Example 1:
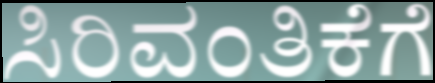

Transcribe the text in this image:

ಸಿರಿವಂತಿಕೆಗೆ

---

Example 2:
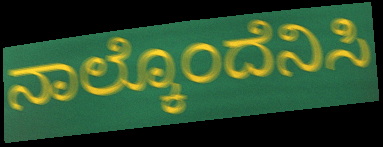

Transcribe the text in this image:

ನಾಲ್ಕೊಂದೆನಿಸಿ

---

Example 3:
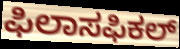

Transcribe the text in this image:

ಫಿಲಾಸಫಿಕಲ್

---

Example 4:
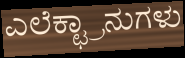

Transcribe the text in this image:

ಎಲೆಕ್ಟ್ರಾನುಗಳು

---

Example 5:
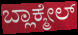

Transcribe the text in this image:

ಬ್ಲಾಕ್ಮೇಲ್